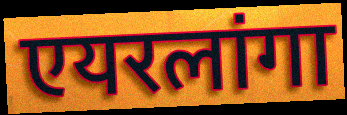
एयरलांगा